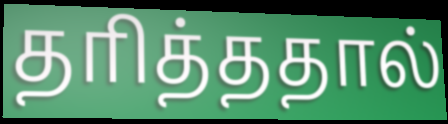
தரித்ததால்